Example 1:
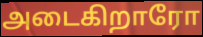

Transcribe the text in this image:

அடைகிறாரோ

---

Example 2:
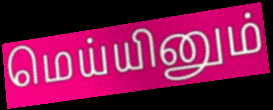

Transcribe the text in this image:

மெய்யினும்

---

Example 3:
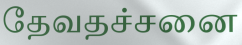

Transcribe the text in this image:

தேவதச்சனை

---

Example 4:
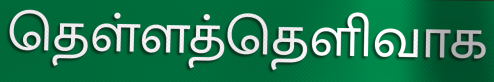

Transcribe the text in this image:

தெள்ளத்தெளிவாக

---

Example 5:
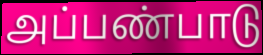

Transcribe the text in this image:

அப்பண்பாடு